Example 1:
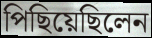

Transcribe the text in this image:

পিছিয়েছিলেন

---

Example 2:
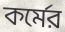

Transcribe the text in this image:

কর্মের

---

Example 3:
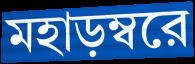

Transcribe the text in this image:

মহাড়ম্বরে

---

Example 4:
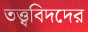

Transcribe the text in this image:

তত্ত্ববিদদের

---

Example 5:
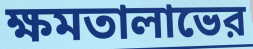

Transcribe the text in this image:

ক্ষমতালাভের